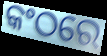
କଂଠରେ